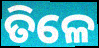
ତିଳେ